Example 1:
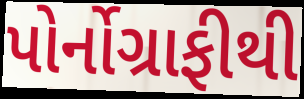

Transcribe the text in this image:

પોર્નોગ્રાફીથી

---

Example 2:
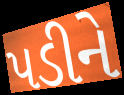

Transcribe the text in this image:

પડીને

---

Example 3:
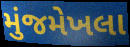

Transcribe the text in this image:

મુંજમેખલા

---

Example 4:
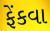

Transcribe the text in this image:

ફેંકવા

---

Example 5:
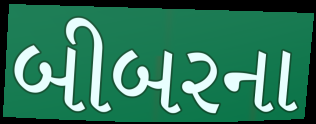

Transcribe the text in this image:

બીબરના